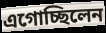
এগোচ্ছিলেন